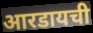
आरडायची